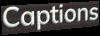
Captions